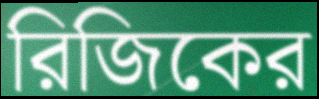
রিজিকের